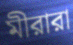
মীরারা